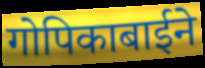
गोपिकाबाईने